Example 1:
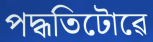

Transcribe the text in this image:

পদ্ধতিটোৱে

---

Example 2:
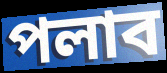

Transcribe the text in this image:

পলাব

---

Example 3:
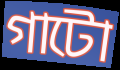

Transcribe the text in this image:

গাটো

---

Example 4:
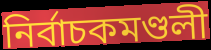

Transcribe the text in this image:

নিৰ্বাচকমণ্ডলী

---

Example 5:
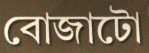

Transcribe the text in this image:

বোজাটো